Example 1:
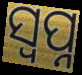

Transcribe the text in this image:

ସ୍ବପ୍ନ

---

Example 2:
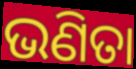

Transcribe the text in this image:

ଭଣିତା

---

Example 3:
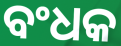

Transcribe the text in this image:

ବଂଧକ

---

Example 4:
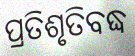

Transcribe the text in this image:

ପ୍ରତିଶୃତିବଦ୍ଧ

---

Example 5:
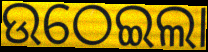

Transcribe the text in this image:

ଉଠେଇଲା